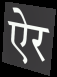
ऐर